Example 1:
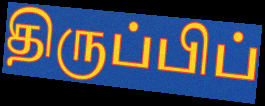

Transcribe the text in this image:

திருப்பிப்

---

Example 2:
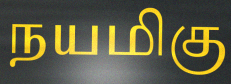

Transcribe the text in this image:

நயமிகு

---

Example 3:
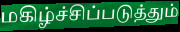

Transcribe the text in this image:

மகிழ்ச்சிப்படுத்தும்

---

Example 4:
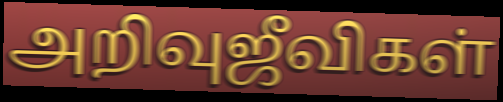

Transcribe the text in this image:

அறிவுஜீவிகள்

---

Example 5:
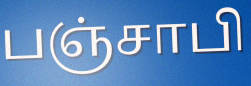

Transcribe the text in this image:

பஞ்சாபி